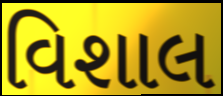
વિશાલ